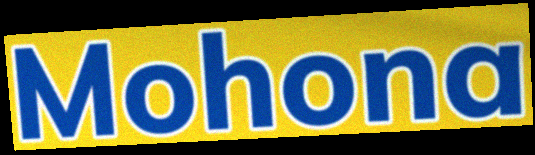
Mohona